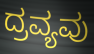
ದ್ರವ್ಯವು